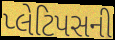
પ્લેટિપસની